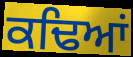
ਕਢਿਆਂ